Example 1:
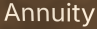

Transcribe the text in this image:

Annuity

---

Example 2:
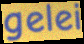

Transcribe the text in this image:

gelei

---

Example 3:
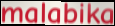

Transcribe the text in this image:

malabika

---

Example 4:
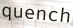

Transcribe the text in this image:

quench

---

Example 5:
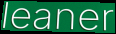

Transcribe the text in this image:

leaner